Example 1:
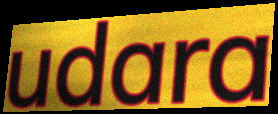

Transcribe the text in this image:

udara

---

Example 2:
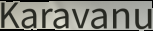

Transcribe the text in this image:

Karavanu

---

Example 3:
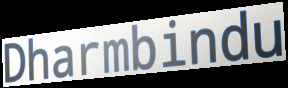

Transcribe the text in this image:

Dharmbindu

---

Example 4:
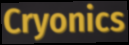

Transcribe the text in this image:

Cryonics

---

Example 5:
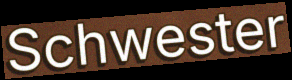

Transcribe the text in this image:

Schwester